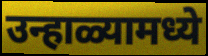
उन्हाळ्यामध्ये